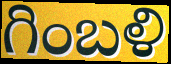
గింబళి